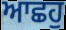
ਆਛਹੁ